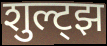
शुल्ट्झ